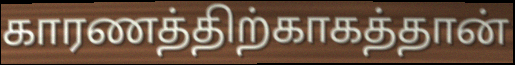
காரணத்திற்காகத்தான்